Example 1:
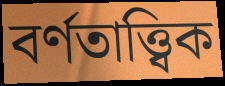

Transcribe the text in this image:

বৰ্ণতাত্ত্বিক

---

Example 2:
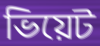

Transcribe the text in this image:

ভিয়েট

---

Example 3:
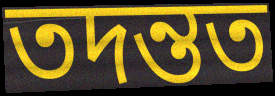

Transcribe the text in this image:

তদন্তত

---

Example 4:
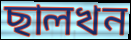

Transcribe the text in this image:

ছালখন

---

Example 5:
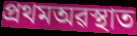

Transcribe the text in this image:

প্ৰথমঅৱস্থাত